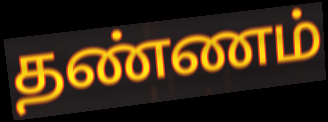
தண்ணம்